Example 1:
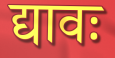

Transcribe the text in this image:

द्यावः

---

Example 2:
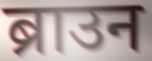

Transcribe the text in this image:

ब्राउन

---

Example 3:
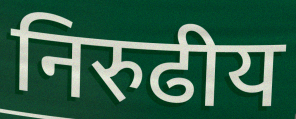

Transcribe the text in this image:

निरुढीय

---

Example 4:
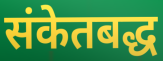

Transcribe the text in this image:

संकेतबद्ध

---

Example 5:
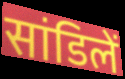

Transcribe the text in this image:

सांडिलें